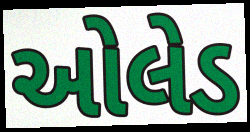
ઓલેડ